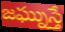
జఘ్నుస్తే